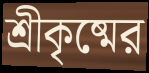
শ্রীকৃষ্মের